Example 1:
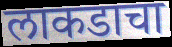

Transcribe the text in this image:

लाकडाचा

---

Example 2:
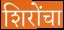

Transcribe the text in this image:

शिरोंचा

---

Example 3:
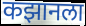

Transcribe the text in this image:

कझानला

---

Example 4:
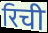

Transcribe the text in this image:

रिची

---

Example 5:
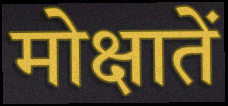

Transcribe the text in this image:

मोक्षातें